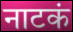
नाटकं